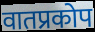
वातप्रकोप